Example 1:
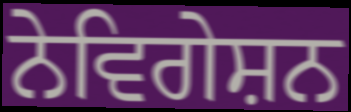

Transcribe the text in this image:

ਨੇਵਿਗੇਸ਼ਨ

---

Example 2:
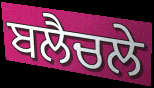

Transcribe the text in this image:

ਬਲੈਚਲੇ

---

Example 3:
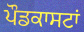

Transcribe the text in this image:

ਪੌਡਕਾਸਟਾਂ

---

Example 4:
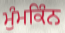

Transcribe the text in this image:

ਮੁੰਮਕਿੰਨ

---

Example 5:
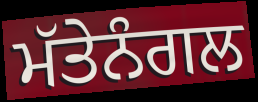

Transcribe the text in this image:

ਮੱਤੇਨੰਗਲ